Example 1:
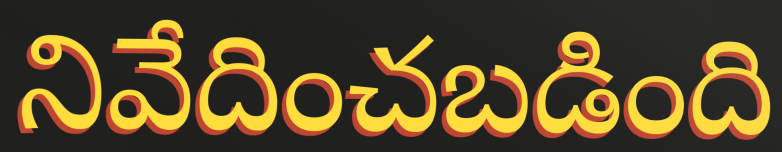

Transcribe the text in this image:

నివేదించబడింది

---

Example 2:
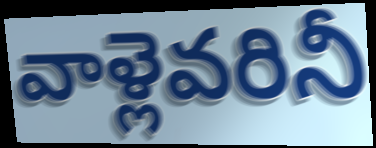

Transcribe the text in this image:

వాళ్లెవరినీ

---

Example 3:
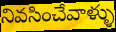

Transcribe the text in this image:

నివసించేవాళ్ళు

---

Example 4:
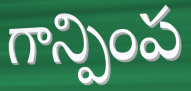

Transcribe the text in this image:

గాన్పింప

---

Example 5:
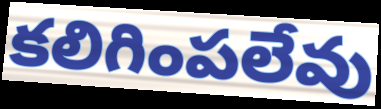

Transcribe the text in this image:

కలిగింపలేవు